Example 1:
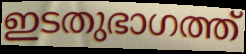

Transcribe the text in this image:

ഇടതുഭാഗത്ത്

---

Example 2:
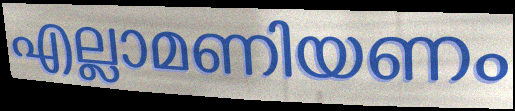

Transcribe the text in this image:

എല്ലാമണിയണം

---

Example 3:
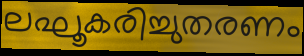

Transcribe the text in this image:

ലഘൂകരിച്ചുതരണം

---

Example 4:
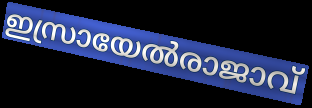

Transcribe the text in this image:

ഇസ്രായേൽരാജാവ്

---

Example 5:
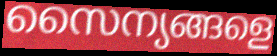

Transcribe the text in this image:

സൈന്യങ്ങളെ